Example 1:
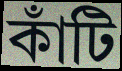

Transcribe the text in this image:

কাঁটি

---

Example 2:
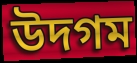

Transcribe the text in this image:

উদগম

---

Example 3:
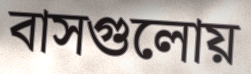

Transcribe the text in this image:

বাসগুলোয়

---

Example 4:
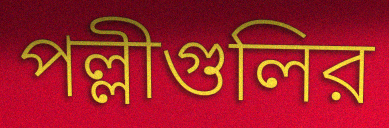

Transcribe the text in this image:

পল্লীগুলির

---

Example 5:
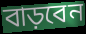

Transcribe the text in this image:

বাড়বেন